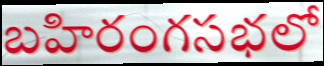
బహిరంగసభలో